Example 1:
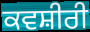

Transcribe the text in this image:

ਕਵਸ਼ੀਰੀ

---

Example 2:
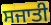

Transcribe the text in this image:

ਸਜਾਤੀ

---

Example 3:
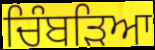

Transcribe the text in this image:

ਚਿੰਬੜਿਆ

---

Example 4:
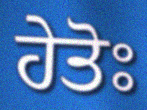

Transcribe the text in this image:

ਹੇਤੋਃ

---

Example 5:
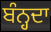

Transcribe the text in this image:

ਬੰਨ੍ਹਦਾ